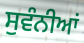
ਸੁਵੰਨੀਆਂ